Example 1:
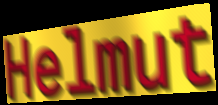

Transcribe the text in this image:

Helmut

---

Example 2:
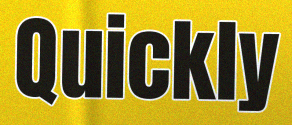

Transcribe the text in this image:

Quickly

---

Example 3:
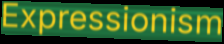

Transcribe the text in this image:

Expressionism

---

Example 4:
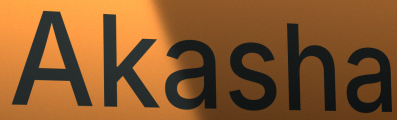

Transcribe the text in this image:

Akasha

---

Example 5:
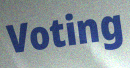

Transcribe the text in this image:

Voting